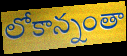
లోకాన్నంతా